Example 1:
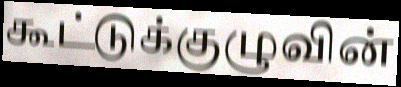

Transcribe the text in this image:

கூட்டுக்குழுவின்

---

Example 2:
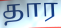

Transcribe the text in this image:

தார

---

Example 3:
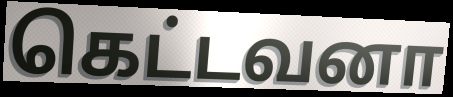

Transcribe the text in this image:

கெட்டவனா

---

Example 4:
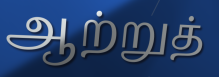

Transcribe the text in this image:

ஆற்றுத்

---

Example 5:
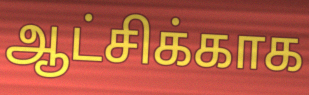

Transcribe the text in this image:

ஆட்சிக்காக